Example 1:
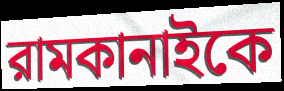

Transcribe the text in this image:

রামকানাইকে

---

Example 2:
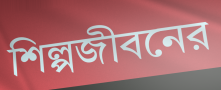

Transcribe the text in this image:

শিল্পজীবনের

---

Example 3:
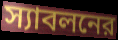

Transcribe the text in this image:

স্যাবলনের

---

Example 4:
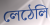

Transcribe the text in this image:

লেঠেলি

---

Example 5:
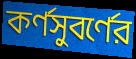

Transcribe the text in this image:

কর্ণসুবর্ণের